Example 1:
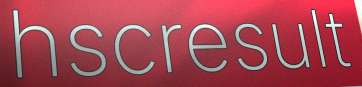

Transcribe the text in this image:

hscresult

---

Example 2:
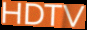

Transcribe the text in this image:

HDTV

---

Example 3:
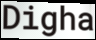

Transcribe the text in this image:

Digha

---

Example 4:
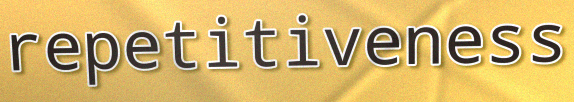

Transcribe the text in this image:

repetitiveness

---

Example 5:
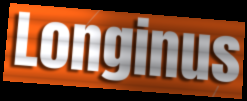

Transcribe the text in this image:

Longinus